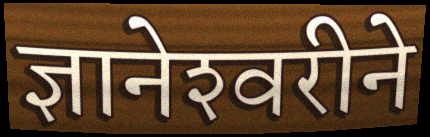
ज्ञानेश्वरीने